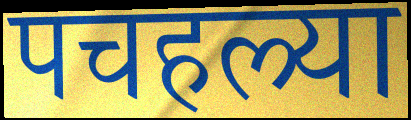
पचहल्या